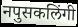
नपुसकलिंगी